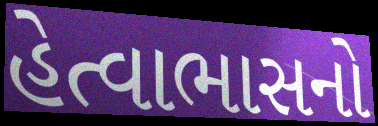
હેત્વાભાસનો